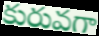
కురువగా